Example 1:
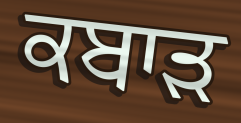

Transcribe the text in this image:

ਕਬਾਡ਼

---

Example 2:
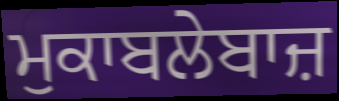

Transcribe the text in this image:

ਮੁਕਾਬਲੇਬਾਜ਼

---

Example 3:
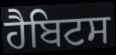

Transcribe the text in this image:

ਹੈਬਿਟਸ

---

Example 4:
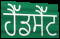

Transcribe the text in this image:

ਹੈੱਡਸੈੱਟ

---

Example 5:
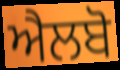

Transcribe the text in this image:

ਐਲਬੋ